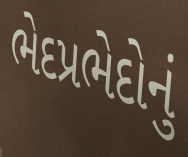
ભેદપ્રભેદોનું